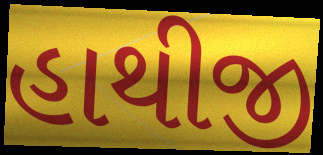
હાથીજી